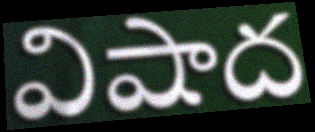
విషాద